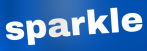
sparkle